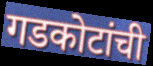
गडकोटांची